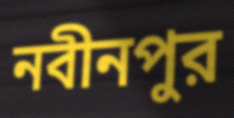
নবীনপুর